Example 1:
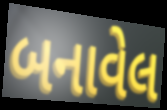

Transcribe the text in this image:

બનાવેલ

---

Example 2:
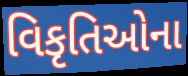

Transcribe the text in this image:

વિકૃતિઓના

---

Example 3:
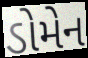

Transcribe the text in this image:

ડોમેન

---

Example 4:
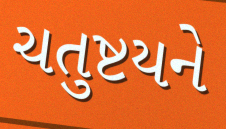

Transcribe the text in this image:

ચતુષ્ટયને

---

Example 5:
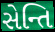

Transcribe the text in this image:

સેન્તિ